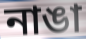
নাঙা